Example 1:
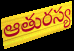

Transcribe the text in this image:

ఆతురస్య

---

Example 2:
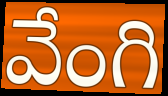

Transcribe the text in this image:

వేంగి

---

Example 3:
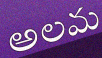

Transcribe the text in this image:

అలమ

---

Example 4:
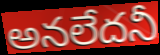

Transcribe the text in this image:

అనలేదనీ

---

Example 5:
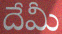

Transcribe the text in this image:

దేమీ